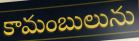
కామంబులును